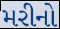
મરીનો